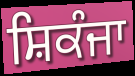
ਸ਼ਿਕੰਜਾ